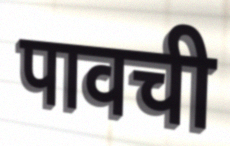
पावची